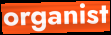
organist